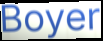
Boyer